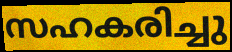
സഹകരിച്ചു